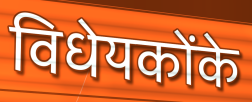
विधेयकोंके